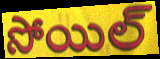
సోయిల్